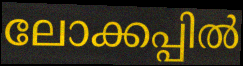
ലോക്കപ്പിൽ